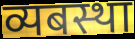
व्यबस्था